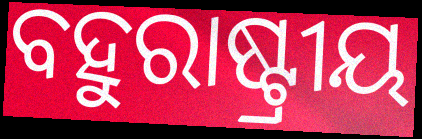
ବହୁରାଷ୍ଟ୍ରୀୟ